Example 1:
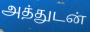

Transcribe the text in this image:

அத்துடன்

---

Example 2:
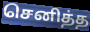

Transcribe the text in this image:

செனித்த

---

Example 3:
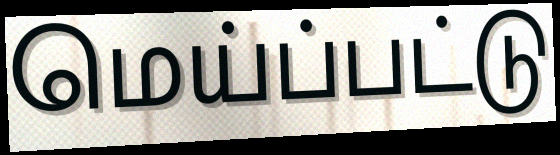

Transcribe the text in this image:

மெய்ப்பட்டு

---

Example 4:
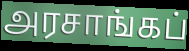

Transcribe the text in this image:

அரசாங்கப்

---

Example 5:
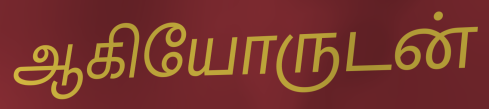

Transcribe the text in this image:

ஆகியோருடன்